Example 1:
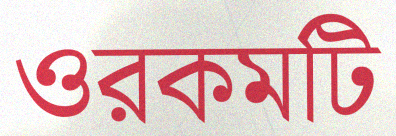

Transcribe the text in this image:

ওরকমটি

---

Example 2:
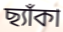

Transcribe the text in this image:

ছ্যাঁকা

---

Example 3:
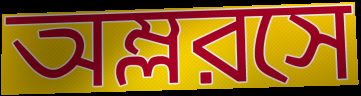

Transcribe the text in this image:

অম্লরসে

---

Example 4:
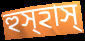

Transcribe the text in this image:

হুস্‌হাস্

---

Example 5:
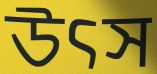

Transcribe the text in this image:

উত্‍স